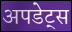
अपडेट्स